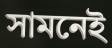
সামনেই